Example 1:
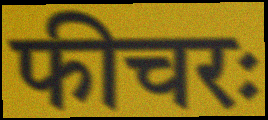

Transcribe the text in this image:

फीचरः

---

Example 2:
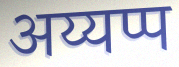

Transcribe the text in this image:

अय्यप्प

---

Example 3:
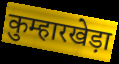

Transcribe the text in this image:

कुम्हारखेड़ा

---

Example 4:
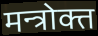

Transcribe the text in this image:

मन्त्रोक्त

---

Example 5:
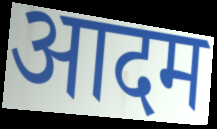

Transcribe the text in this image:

आदम